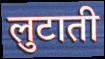
लुटाती